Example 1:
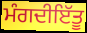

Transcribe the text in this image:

ਮੰਗਦੀਇੱਤੂ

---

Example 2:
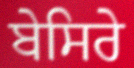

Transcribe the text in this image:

ਬੇਸਿਰੇ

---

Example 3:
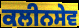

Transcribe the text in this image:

ਕਲੀਨਸੇਵ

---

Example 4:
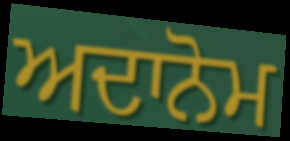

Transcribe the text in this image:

ਅਦਾਨੋਮ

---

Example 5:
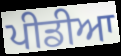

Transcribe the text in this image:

ਪੀਡੀਆ